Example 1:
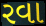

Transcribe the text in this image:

રવા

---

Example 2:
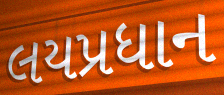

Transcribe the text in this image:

લયપ્રધાન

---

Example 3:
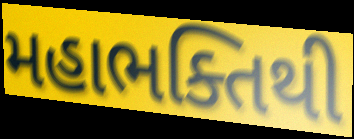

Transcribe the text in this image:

મહાભક્તિથી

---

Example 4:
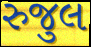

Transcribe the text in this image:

રુજુલ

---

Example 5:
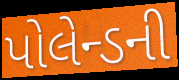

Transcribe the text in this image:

પોલેન્ડની